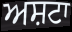
ਅਸ਼ਟਾ